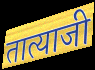
तात्याजी